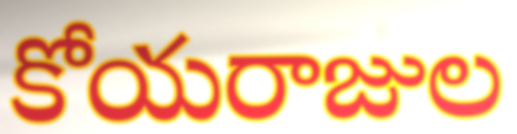
కోయరాజుల